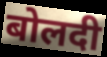
बोलदी